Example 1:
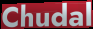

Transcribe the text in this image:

Chudal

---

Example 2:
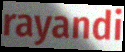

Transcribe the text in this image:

rayandi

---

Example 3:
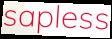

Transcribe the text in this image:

sapless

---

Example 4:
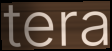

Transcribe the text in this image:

tera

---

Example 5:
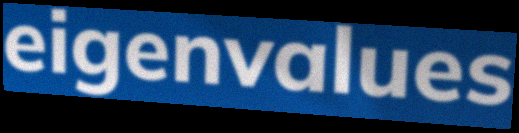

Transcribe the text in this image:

eigenvalues